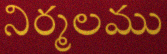
నిర్మలము